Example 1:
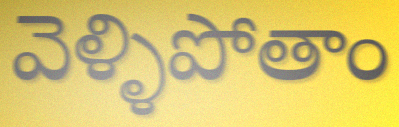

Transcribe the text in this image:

వెళ్ళిపోతాం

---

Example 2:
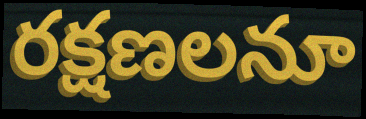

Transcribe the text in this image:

రక్షణలనూ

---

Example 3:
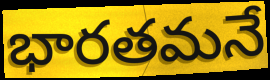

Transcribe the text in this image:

భారతమనే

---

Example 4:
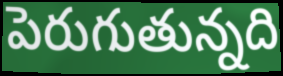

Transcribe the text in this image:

పెరుగుతున్నది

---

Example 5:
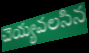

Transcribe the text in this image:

చెయ్యవలసిన